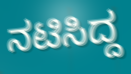
ನಟಿಸಿದ್ದ